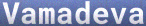
Vamadeva